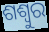
ଶଶ୍ୱୁର